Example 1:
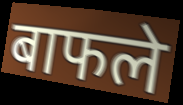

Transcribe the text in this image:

बाफले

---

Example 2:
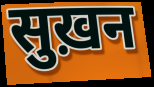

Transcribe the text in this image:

सुख़न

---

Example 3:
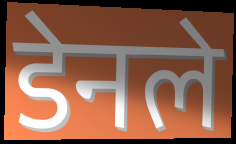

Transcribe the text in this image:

डेनले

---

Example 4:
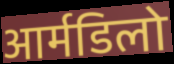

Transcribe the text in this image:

आर्मडिलो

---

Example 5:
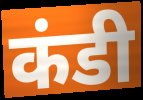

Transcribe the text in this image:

कंडी